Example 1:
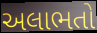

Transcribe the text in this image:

અલાભતો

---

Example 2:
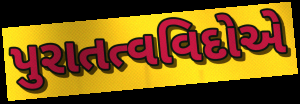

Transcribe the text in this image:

પુરાતત્વવિદોએ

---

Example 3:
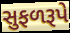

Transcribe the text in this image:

સુફળરૂપે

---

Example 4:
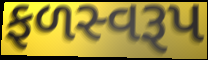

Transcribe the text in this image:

ફળસ્વરૂપ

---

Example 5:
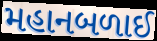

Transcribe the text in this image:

મહાનબળાઈ